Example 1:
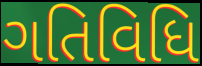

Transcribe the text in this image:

ગતિવિધિ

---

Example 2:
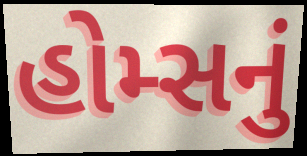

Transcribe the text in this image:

હોમ્સનું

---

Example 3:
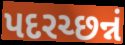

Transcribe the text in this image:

પદરચ્છન્નં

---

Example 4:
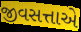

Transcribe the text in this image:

જીવસત્તાએ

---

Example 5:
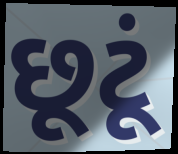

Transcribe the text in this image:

છૂટૂં